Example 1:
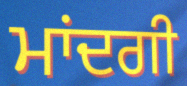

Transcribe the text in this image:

ਮਾਂਦਗੀ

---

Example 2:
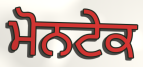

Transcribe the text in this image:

ਮੋਨਟੇਕ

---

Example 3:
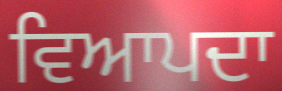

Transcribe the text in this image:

ਵਿਆਪਦਾ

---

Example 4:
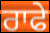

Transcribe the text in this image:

ਰਾਫੇ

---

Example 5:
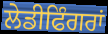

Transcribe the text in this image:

ਲੇਡੀਫਿੰਗਰਾਂ